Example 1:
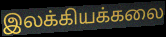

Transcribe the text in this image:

இலக்கியக்கலை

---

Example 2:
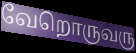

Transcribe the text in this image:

வேறொருவரு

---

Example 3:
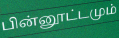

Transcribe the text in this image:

பின்னூட்டமும்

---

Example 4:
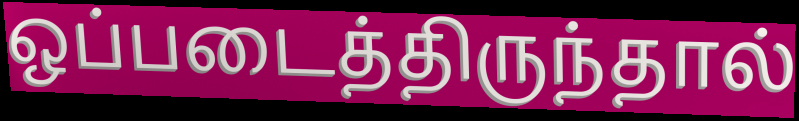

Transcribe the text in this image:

ஒப்படைத்திருந்தால்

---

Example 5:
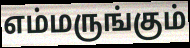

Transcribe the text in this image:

எம்மருங்கும்